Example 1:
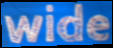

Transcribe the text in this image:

wide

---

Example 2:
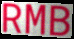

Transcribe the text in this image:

RMB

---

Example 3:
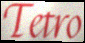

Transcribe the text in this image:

Tetro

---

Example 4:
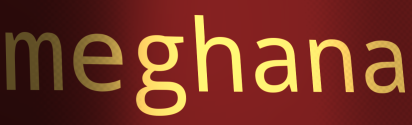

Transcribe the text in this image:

meghana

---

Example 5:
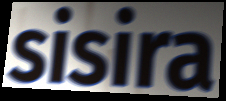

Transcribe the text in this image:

sisira